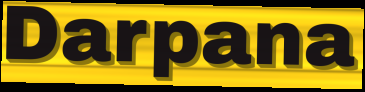
Darpana